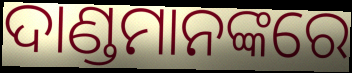
ଦାଣ୍ଡମାନଙ୍କରେ